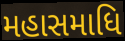
મહાસમાધિ